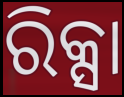
ରିକ୍ସା